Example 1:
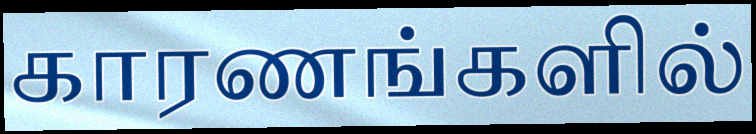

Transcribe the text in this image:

காரணங்களில்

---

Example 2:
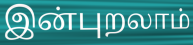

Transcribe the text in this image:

இன்புறலாம்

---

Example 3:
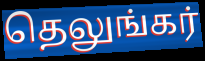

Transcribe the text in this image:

தெலுங்கர்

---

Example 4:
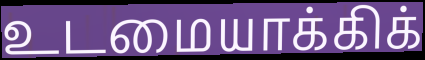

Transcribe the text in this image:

உடமையாக்கிக்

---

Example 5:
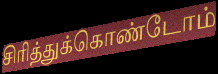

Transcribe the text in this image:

சிரித்துக்கொண்டோம்